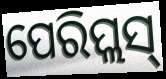
ପେରିପ୍ଲସ୍